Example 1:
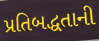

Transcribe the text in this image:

પ્રતિબદ્ધતાની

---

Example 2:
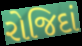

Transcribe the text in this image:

રોજિદાં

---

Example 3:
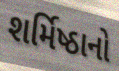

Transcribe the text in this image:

શર્મિષ્ઠાનો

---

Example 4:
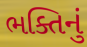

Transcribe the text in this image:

ભક્તિનું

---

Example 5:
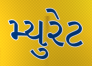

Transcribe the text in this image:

મ્યુરેટ